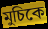
মুচিকে